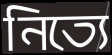
নিত্যে